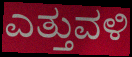
ಎತ್ತುವಳಿ